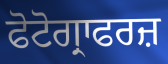
ਫੋਟੋਗ੍ਰਾਫਰਜ਼